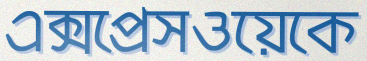
এক্সপ্রেসওয়েকে